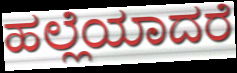
ಹಲ್ಲೆಯಾದರೆ